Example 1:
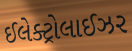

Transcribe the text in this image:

ઈલેક્ટ્રોલાઈઝર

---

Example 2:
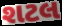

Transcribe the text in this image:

શટલ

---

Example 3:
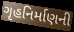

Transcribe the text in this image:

ગૃહનિર્માણની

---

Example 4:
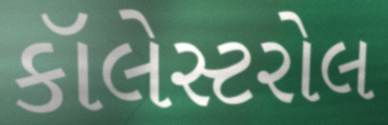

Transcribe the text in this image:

કૉલેસ્ટરોલ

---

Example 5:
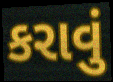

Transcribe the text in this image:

કરાવું